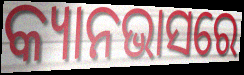
କ୍ୟାନଭାସରେ